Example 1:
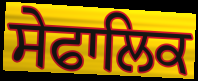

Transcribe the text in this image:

ਸੇਫਾਲਿਕ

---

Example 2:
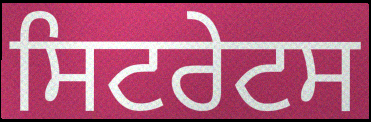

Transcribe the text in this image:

ਸਿਟਰੇਟਸ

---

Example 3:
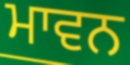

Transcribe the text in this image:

ਮਾਵਨ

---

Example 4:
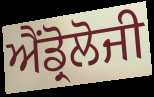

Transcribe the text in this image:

ਐਂਡ੍ਰੋਲੋਜੀ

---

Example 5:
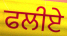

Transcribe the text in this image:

ਫਲੀਏ